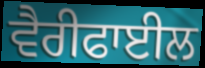
ਵੈਰੀਫਾਈਲ